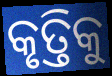
କୃତ୍ତିକୁ